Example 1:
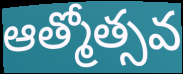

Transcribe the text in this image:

ఆత్మోత్సవ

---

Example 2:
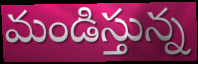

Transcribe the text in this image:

మండిస్తున్న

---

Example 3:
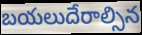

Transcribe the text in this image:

బయలుదేరాల్సిన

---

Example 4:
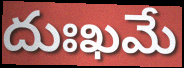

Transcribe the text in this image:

దుఃఖమే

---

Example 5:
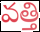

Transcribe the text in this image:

వత్తి